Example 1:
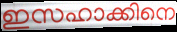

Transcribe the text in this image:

ഇസഹാക്കിനെ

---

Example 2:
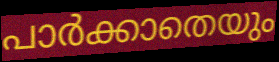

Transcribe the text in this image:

പാർക്കാതെയും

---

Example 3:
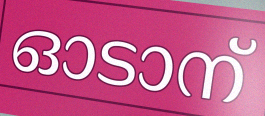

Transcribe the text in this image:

ഓടാന്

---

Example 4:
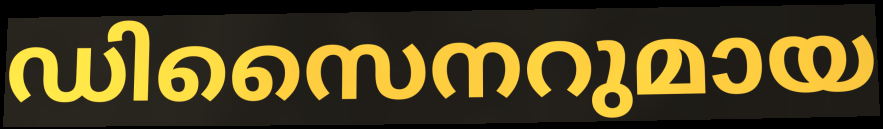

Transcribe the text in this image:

ഡിസൈനറുമായ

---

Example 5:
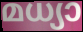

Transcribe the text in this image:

മധ്യാ